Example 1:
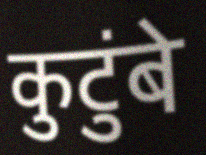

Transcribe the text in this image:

कुटुंबे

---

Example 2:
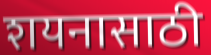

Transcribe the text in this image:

शयनासाठी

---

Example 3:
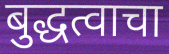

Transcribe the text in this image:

बुद्धत्वाचा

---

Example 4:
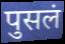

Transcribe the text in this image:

पुसलं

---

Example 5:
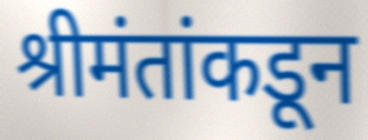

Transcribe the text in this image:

श्रीमंतांकडून